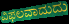
ವಿಫಲವಾದುದು